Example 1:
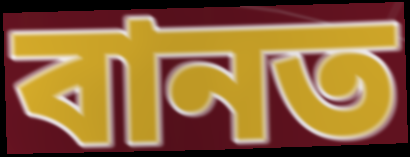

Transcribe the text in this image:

বানত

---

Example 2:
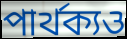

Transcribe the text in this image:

পাৰ্থক্যও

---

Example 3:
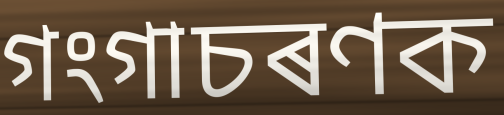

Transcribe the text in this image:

গংগাচৰণক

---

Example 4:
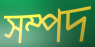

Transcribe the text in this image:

সম্পদ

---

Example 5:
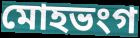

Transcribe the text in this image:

মোহভংগ